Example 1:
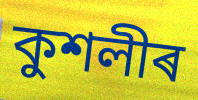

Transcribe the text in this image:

কুশলীৰ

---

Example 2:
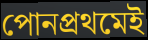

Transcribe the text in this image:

পোনপ্ৰথমেই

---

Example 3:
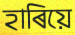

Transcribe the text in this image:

হাৰিয়ে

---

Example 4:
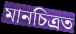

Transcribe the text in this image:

মানচিত্ৰত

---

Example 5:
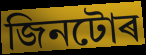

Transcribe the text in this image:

জিনটোৰ